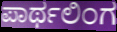
ಪಾರ್ಥಲಿಂಗ